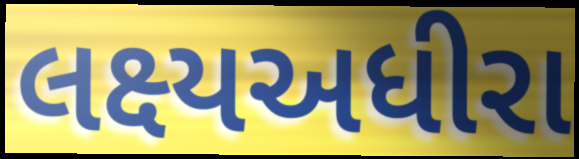
લક્ષ્યઅધીરા